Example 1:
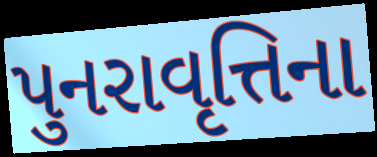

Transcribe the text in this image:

પુનરાવૃત્તિના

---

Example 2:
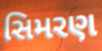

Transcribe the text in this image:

સિમરણ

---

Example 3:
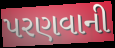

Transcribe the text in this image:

પરણવાની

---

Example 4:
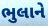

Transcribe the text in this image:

ભુલાને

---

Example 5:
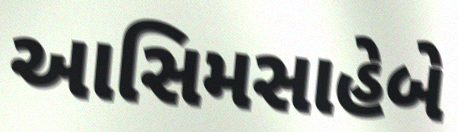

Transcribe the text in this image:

આસિમસાહેબે